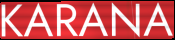
KARANA